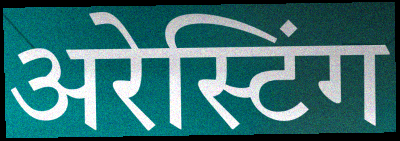
अरेस्टिंग